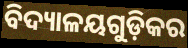
ବିଦ୍ୟାଳୟଗୁଡ଼ିକର